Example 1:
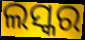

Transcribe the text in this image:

ଲସ୍କର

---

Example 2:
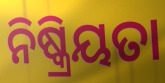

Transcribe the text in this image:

ନିଷ୍କ୍ରିୟତା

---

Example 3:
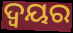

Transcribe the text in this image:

ଦ୍ବୟର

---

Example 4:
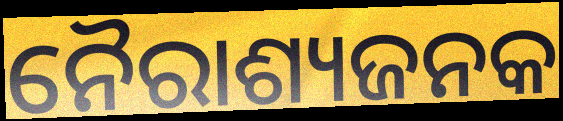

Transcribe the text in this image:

ନୈରାଶ୍ୟଜନକ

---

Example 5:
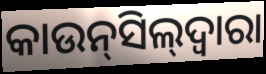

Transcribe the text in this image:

କାଉନ୍‌ସିଲ୍‌ଦ୍ବାରା